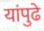
यांपुढे